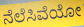
ನೆಲೆಸಿವೆಯೋ